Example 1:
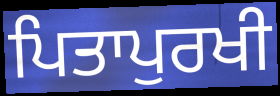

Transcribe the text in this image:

ਪਿਤਾਪੁਰਖੀ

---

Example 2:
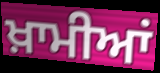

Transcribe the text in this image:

ਖ਼ਾਮੀਆਂ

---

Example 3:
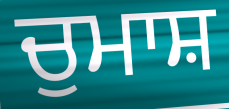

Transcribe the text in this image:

ਚੁਮਾਸ਼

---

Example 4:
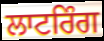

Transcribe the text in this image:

ਲਾਟਰਿੰਗ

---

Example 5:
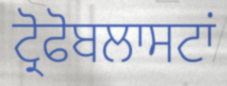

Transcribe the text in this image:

ਟ੍ਰੋਫੋਬਲਾਸਟਾਂ